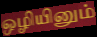
ஒழியினும்